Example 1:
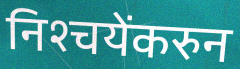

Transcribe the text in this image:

निश्चयेंकरुन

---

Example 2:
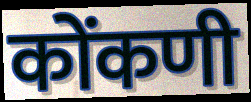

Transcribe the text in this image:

कोंकणी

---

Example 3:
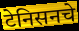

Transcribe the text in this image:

टेनिसनचे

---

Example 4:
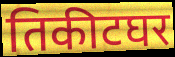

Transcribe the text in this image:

तिकीटघर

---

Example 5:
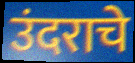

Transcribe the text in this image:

उंदराचे